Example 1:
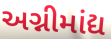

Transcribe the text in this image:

અગ્નીમાંદ્ય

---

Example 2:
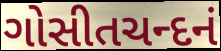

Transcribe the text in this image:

ગોસીતચન્દનં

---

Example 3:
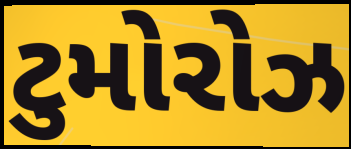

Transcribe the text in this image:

ટુમોરોઝ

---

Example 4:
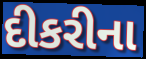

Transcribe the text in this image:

દીકરીના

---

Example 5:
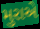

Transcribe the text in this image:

મુરાએ